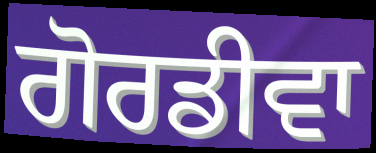
ਗੋਰਡੀਵਾ